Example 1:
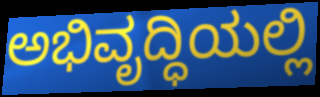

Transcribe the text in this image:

ಅಭಿವೃದ್ಧಿಯಲ್ಲಿ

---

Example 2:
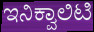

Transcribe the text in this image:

ಇನಿಕ್ವಾಲಿಟಿ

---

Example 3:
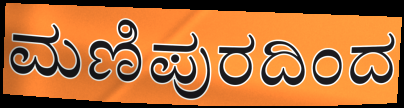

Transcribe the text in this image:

ಮಣಿಪುರದಿಂದ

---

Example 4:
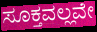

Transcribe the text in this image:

ಸೂಕ್ತವಲ್ಲವೇ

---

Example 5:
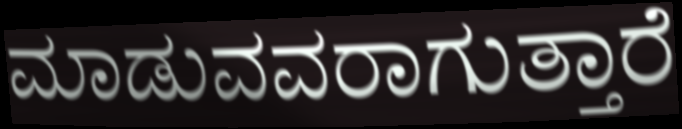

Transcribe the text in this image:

ಮಾಡುವವರಾಗುತ್ತಾರೆ